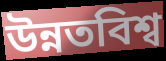
উন্নতবিশ্ব